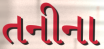
તનીના